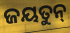
ଜୟତୁନ୍